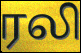
ரலி